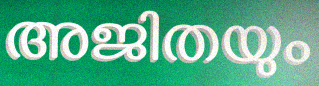
അജിതയും